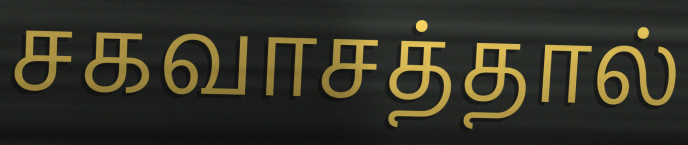
சகவாசத்தால்